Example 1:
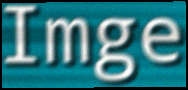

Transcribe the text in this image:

Imge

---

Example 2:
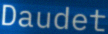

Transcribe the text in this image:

Daudet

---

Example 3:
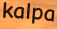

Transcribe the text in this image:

kalpa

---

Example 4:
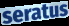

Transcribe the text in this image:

seratus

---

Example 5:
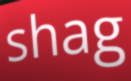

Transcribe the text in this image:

shag